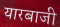
यारबाजी